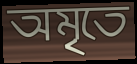
অমৃতে